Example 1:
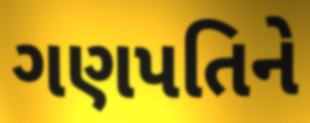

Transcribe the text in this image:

ગણપતિને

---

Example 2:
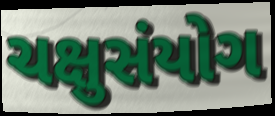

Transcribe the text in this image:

ચક્ષુસંયોગ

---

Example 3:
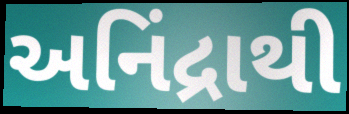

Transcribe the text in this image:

અનિંદ્રાથી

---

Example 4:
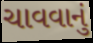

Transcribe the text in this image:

ચાવવાનું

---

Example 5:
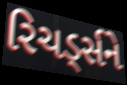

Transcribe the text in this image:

રિચર્ડ્સને